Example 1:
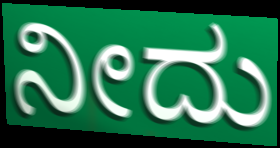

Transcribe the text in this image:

ನೀದು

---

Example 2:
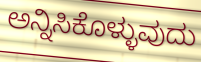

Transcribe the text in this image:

ಅನ್ನಿಸಿಕೊಳ್ಳುವುದು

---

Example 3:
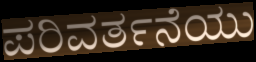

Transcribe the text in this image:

ಪರಿವರ್ತನೆಯು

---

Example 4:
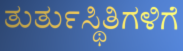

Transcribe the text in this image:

ತುರ್ತುಸ್ಥಿತಿಗಳಿಗೆ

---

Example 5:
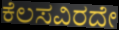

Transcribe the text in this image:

ಕೆಲಸವಿರದೇ